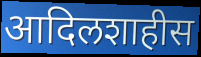
आदिलशाहीस